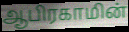
ஆபிரகாமின்